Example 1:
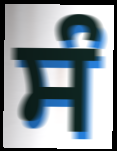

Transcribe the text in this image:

ਸੰ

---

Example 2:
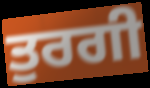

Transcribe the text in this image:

ਤੁਰਗੀ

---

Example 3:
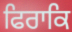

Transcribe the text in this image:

ਫਿਰਾਕਿ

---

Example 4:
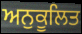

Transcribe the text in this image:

ਅਨੁਕੂਲਿਤ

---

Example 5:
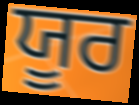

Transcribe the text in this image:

ਯੂਰ